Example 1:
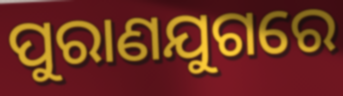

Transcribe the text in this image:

ପୁରାଣଯୁଗରେ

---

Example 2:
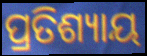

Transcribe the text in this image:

ପ୍ରତିଶ୍ୟାୟ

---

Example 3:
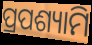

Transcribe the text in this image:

ପ୍ରପଶ୍ୟାମି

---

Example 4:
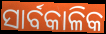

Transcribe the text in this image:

ସାର୍ବକାଳିକ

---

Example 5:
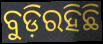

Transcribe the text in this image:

ବୁଡ଼ିରହିଛି